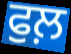
ਫੁਲ਼